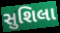
સુશિલા